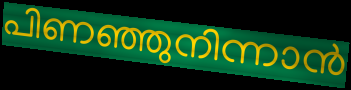
പിണഞ്ഞുനിന്നാൻ